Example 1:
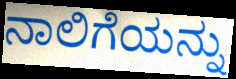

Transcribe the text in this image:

ನಾಲಿಗೆಯನ್ನು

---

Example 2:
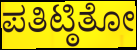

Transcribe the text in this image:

ಪತಿಟ್ಠಿತೋ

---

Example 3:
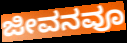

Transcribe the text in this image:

ಜೀವನವೂ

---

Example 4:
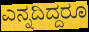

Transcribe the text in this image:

ಎನ್ನದಿದ್ದರೂ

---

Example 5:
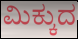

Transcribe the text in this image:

ಮಿಕ್ಕುದ